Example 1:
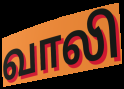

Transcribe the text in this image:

வாலி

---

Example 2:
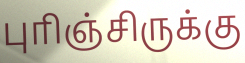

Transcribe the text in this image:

புரிஞ்சிருக்கு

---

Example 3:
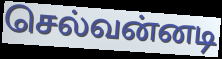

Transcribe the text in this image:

செல்வன்னடி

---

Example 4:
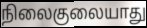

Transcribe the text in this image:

நிலைகுலையாது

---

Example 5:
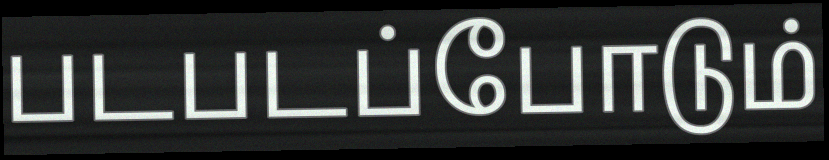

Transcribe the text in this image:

படபடப்போடும்